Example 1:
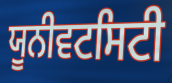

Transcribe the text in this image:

ਯੂਨੀਵਟਸਿਟੀ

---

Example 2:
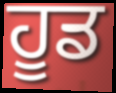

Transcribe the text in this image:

ਹੂਡ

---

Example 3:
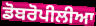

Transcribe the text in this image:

ਡੋਬਰੋਪੀਲੀਆ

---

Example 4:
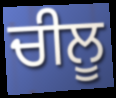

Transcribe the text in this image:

ਚੀਲੂ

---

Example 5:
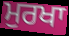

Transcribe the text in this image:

ਮੁਰਖਾ